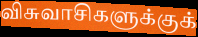
விசுவாசிகளுக்குக்